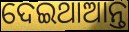
ଦେଇଥାଆନ୍ତ